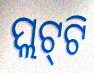
ପ୍ଲଟ୍‌ଟି